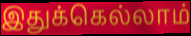
இதுக்கெல்லாம்